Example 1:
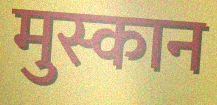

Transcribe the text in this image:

मुस्‍कान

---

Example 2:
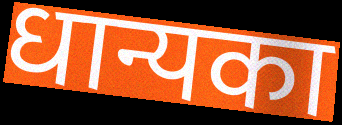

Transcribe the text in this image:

धान्यका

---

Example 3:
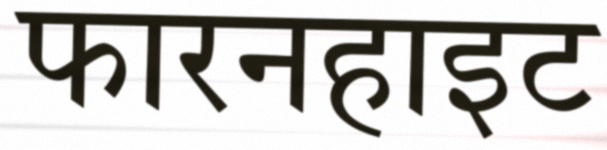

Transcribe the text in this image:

फारनहाइट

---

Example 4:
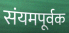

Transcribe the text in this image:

संयमपूर्वक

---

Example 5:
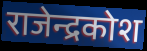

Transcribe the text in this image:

राजेन्द्रकोश